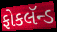
ફોકલૅન્ડ